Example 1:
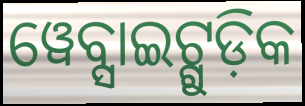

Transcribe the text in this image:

ୱେବ୍ସାଇଟ୍ଗୁଡ଼ିକ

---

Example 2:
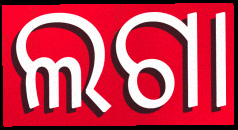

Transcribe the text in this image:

ଲଗା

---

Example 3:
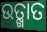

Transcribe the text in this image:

ଉତ୍ଖାତ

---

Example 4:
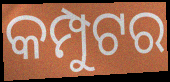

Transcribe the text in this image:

କମ୍ପୁଟର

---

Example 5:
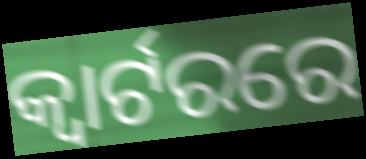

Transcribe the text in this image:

କ୍ଵାର୍ଟରରେ